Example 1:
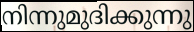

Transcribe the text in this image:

നിന്നുമുദിക്കുന്നു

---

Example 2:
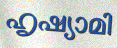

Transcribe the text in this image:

ഹൃഷ്യാമി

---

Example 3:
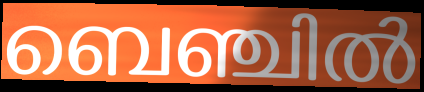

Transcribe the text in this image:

ബെഞ്ചിൽ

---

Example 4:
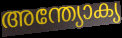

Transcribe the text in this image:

അന്ത്യോക്യ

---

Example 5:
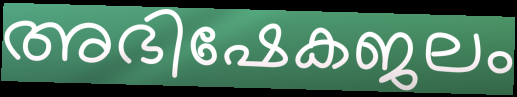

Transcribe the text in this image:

അഭിഷേകജലം